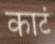
काटं